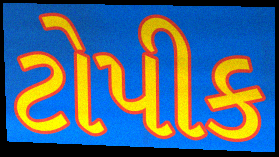
ટોપીક